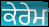
ਕੇਰੇਮ